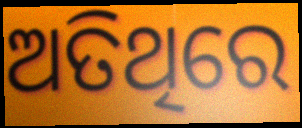
ଅତିଥିରେ